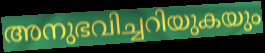
അനുഭവിച്ചറിയുകയും